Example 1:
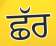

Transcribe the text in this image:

ਛੱਰ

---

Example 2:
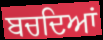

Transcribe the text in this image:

ਬਚਦਿਆਂ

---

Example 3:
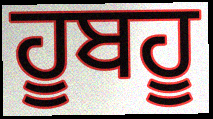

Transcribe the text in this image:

ਹੂਬਹੂ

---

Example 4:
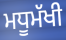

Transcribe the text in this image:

ਮਧੂਮੱਖੀ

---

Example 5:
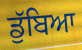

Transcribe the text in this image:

ਡੁੱਬਿਆ